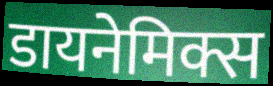
डायनेमिक्स